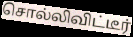
சொல்லிவிட்டீர்